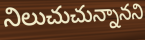
నిలుచుచున్నానని